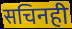
सचिनही